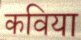
कविया